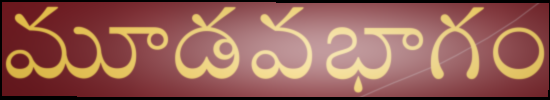
మూడవభాగం